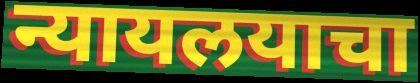
न्यायलयाचा